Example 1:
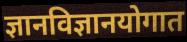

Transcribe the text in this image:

ज्ञानविज्ञानयोगात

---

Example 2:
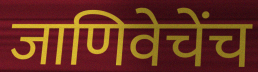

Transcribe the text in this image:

जाणिवेचेंच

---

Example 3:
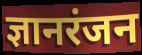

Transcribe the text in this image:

ज्ञानरंजन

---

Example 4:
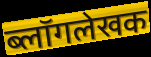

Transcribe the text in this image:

ब्लॉगलेखक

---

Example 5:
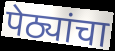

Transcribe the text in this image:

पेठ्यांचा